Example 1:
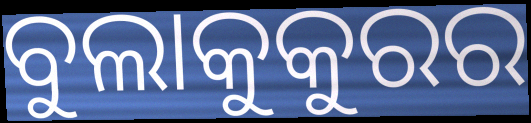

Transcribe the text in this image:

ବୁଲାକୁକୁରର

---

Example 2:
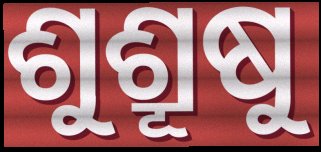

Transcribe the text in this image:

ଶୁଶ୍ରୂଷୁ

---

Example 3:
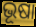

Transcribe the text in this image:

ଭୂଷା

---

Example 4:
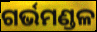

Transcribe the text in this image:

ଗର୍ଭମଣ୍ଡଳ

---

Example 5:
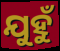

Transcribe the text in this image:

ଯୁହୁଁ